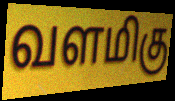
வளமிகு